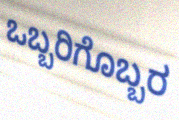
ಒಬ್ಬರಿಗೊಬ್ಬರ